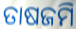
ତାଷଜମି